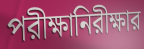
পরীক্ষানিরীক্ষার